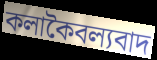
কলাকৈবল্যবাদ